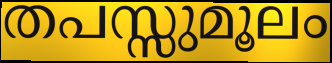
തപസ്സുമൂലം